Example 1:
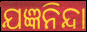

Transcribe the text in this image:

ଯଜ୍ଞନିନ୍ଦା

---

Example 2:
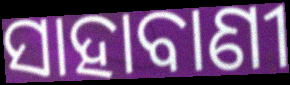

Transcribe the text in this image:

ସାହାବାଣୀ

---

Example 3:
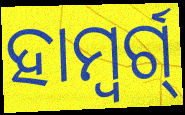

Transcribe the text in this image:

ହାମ୍ବର୍ଗ୍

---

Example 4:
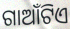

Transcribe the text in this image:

ଗାଆଁଟିଏ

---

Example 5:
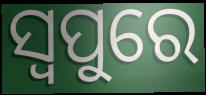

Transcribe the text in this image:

ସ୍ୱପୁରେ